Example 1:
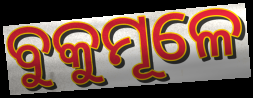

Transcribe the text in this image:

ବୁକୁମୂଳେ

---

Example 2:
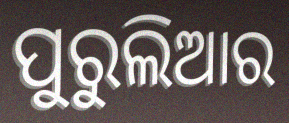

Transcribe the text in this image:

ପୁରୁଲିଆର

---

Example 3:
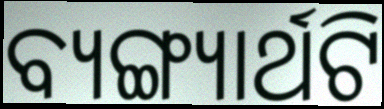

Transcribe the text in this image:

ବ୍ୟଙ୍ଗ୍ୟାର୍ଥଟି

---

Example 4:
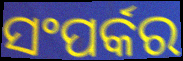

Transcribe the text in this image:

ସଂପର୍କର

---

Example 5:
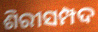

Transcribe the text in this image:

ଶିରୀସମ୍ପଦ